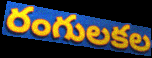
రంగులకల